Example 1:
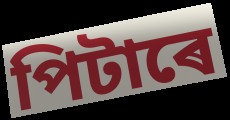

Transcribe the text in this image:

পিটাৰে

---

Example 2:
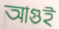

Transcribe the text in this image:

আগুই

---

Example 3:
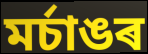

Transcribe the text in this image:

মৰ্চাঙৰ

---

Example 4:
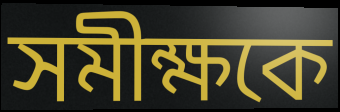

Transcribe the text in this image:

সমীক্ষকে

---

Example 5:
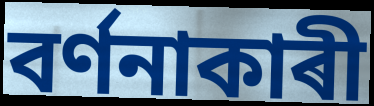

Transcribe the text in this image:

বৰ্ণনাকাৰী